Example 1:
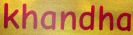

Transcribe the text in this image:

khandha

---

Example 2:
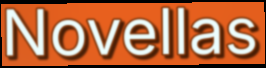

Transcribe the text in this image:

Novellas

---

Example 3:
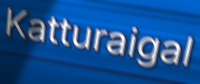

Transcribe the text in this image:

Katturaigal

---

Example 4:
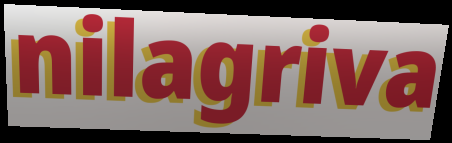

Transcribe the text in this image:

nilagriva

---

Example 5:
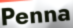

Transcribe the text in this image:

Penna